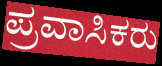
ಪ್ರವಾಸಿಕರು